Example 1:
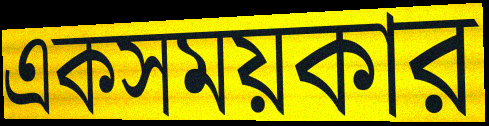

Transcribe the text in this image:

একসময়কার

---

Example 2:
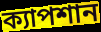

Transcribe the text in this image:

ক্যাপশান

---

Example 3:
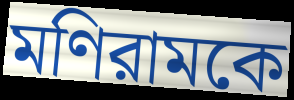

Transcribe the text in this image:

মণিরামকে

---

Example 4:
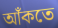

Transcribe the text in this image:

আঁকতে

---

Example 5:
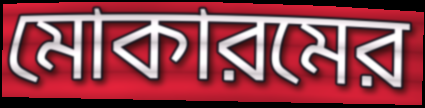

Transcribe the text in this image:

মোকারমের